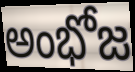
అంభోజ